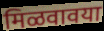
मिळवावया